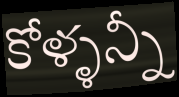
కోళ్ళన్నీ